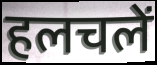
हलचलें